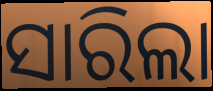
ସାରିଲା